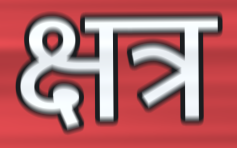
क्षत्र